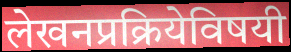
लेखनप्रक्रियेविषयी